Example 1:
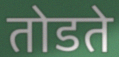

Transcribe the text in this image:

तोडते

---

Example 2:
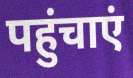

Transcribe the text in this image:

पहुंचाएं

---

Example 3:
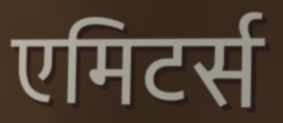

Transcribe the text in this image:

एमिटर्स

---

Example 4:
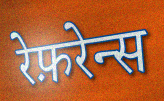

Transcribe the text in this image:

रेफ़रेन्स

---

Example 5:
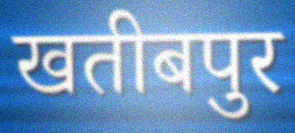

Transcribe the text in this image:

खतीबपुर